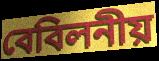
বেবিলনীয়